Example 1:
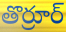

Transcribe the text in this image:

తొర్రూర్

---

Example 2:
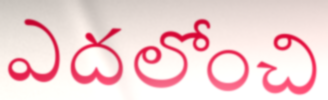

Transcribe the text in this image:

ఎదలోంచి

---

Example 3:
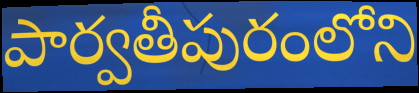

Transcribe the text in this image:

పార్వతీపురంలోని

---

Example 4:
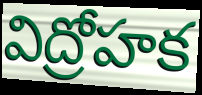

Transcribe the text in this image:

విద్రోహక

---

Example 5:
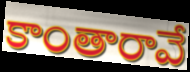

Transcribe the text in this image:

కాంతారావే